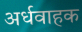
अर्धवाहक